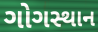
ગોગસ્થાન